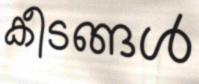
കീടങ്ങൾ